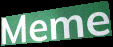
Meme